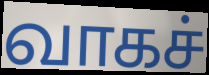
வாகச்